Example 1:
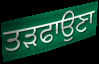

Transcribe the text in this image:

ਤੜਫਾਉਣਾ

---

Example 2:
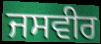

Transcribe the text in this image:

ਜਸਵੀਰ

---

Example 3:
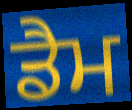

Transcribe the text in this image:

ਡੈਮ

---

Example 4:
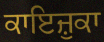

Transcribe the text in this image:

ਕਾਇਜ਼ੁਕਾ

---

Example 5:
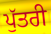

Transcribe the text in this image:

ਪੁੱਤਰੀ